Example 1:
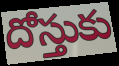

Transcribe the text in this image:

దోస్తుకు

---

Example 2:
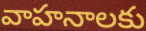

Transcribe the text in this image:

వాహనాలకు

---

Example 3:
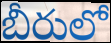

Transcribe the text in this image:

బీరులో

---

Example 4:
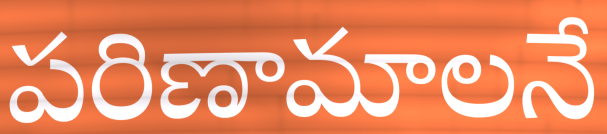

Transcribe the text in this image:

పరిణామాలనే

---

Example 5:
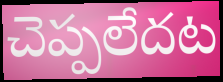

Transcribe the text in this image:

చెప్పలేదట